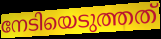
നേടിയെടുത്തത്